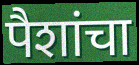
पैशांचा